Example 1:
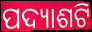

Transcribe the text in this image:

ପଦ୍ୟାଶଟି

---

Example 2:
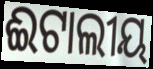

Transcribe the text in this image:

ଈଟାଲୀୟ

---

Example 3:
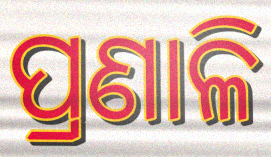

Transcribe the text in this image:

ପ୍ରଣାଳି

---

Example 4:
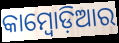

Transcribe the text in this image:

କାମ୍ବୋଡ଼ିଆର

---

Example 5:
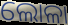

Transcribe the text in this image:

ଲୋଳା